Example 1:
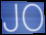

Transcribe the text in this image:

JO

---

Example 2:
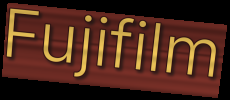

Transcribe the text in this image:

Fujifilm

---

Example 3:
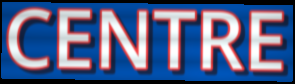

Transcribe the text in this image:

CENTRE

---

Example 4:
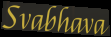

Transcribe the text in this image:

Svabhava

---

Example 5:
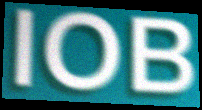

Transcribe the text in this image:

IOB